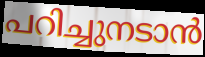
പറിച്ചുനടാൻ